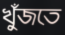
খুঁজতে